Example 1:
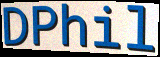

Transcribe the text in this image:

DPhil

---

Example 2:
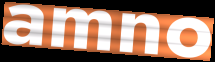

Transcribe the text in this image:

amno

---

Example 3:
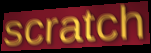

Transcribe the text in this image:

scratch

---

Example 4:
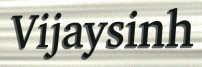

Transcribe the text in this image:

Vijaysinh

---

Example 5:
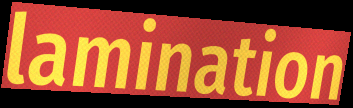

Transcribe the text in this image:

lamination